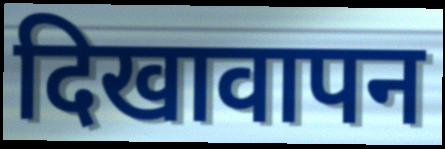
दिखावापन